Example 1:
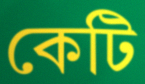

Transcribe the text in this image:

কেটি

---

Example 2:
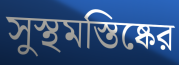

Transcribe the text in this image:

সুস্থমস্তিষ্কের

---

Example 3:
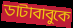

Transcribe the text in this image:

ডাটাবাবুকে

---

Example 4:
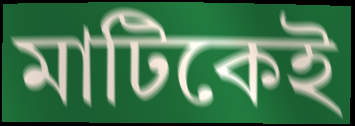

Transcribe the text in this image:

মাটিকেই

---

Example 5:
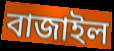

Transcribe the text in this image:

বাজাইল